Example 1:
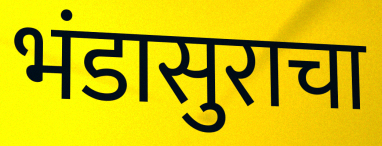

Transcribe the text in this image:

भंडासुराचा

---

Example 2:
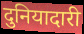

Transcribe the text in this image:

दुनियादारी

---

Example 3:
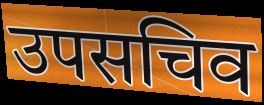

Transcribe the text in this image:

उपसचिव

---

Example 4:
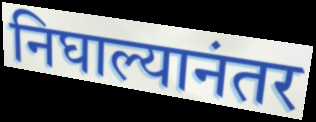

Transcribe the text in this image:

निघाल्यानंतर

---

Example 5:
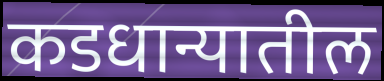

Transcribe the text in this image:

कडधान्यातील